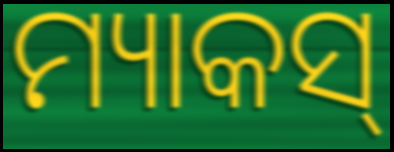
ମ୍ୟାକସ୍